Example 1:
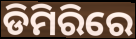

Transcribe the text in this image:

ଡିମିରିରେ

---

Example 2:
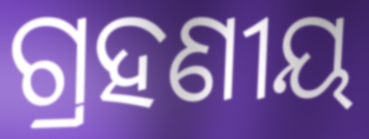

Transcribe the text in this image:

ଗ୍ରହଣୀୟ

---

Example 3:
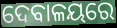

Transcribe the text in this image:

ଦେବାଳୟରେ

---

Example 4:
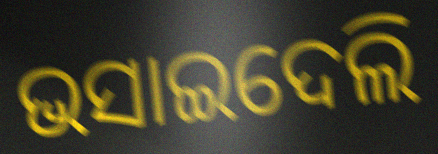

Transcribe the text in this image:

ଭସାଇଦେଲି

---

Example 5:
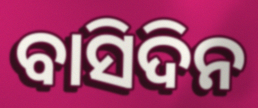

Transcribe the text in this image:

ବାସିଦିନ